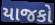
યાજકો